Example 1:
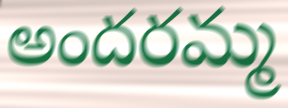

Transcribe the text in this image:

అందరమ్మ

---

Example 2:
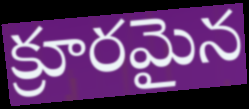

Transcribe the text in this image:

క్రూరమైన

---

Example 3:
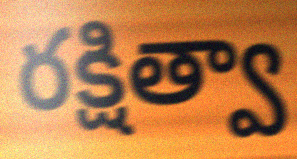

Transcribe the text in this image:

రక్షిత్వా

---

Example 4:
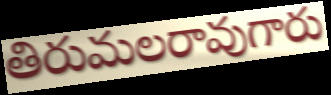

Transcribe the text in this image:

తిరుమలరావుగారు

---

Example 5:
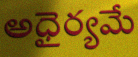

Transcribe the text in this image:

అధైర్యమే